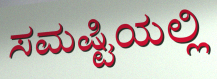
ಸಮಷ್ಟಿಯಲ್ಲಿ